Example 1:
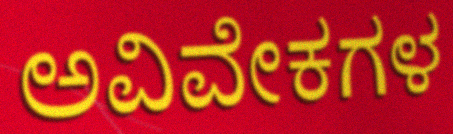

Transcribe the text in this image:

ಅವಿವೇಕಗಳ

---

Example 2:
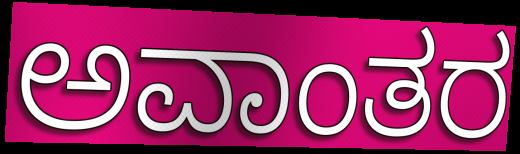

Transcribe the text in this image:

ಅವಾಂತರ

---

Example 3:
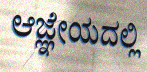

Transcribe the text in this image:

ಆಜ್ಞೇಯದಲ್ಲಿ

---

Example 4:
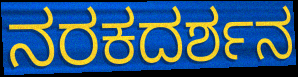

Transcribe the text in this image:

ನರಕದರ್ಶನ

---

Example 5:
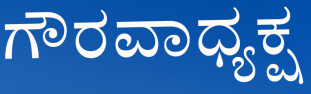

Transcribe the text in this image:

ಗೌರವಾಧ್ಯಕ್ಷ